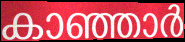
കാഞ്ഞാർ